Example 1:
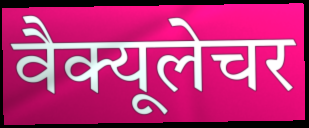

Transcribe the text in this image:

वैक्यूलेचर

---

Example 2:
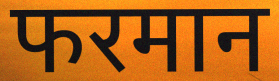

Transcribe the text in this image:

फरमान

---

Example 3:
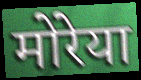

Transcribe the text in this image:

मोरेया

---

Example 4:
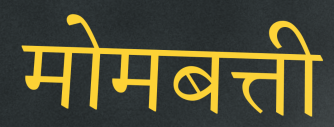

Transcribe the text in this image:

मोमबत्ती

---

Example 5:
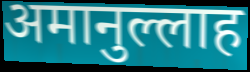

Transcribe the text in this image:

अमानुल्लाह